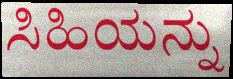
ಸಿಹಿಯನ್ನು